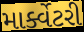
માર્ક્વેટરી